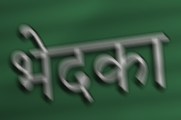
भेदका